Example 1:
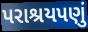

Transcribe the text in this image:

પરાશ્રયપણું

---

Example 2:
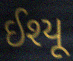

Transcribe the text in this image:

ઈશ્યૂ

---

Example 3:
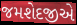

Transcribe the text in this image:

જમશેદજીએ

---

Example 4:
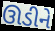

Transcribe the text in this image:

ઊડીને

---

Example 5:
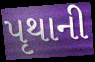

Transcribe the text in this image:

પૃથાની